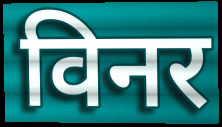
विनर